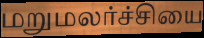
மறுமலர்ச்சியை